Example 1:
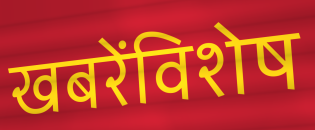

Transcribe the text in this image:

खबरेंविशेष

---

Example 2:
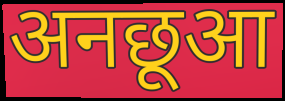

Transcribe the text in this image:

अनछूआ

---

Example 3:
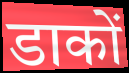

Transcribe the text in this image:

डाकों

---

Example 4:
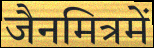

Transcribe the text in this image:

जैनमित्रमें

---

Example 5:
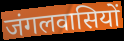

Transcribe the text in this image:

जंगलवासियों